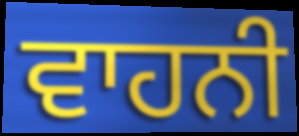
ਵਾਹਨੀ